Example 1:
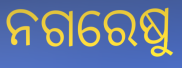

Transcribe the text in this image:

ନଗରେଷୁ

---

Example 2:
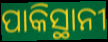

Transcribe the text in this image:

ପାକିସ୍ଥାନୀ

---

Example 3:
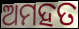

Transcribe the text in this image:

ଅମହତ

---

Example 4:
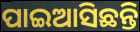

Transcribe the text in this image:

ପାଇଆସିଛନ୍ତି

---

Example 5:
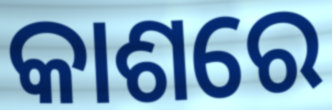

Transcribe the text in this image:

କାଶରେ